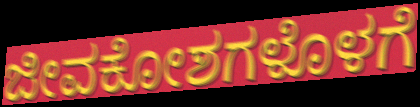
ಜೀವಕೋಶಗಳೊಳಗೆ